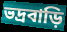
ভদ্রবাড়ি